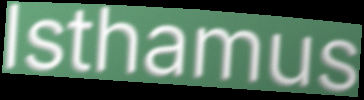
Isthamus